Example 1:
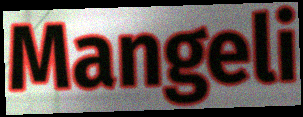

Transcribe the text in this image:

Mangeli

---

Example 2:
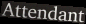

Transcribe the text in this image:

Attendant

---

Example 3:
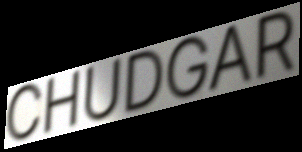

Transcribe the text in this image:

CHUDGAR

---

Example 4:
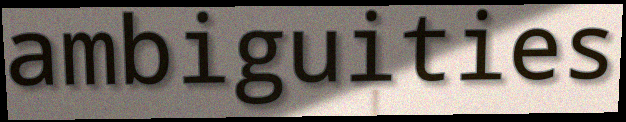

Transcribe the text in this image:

ambiguities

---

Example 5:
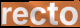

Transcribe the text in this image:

recto